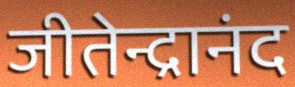
जीतेन्द्रानंद